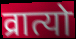
व्रात्यो